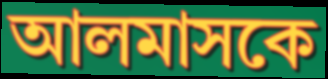
আলমাসকে